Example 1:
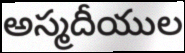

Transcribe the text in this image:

అస్మదీయుల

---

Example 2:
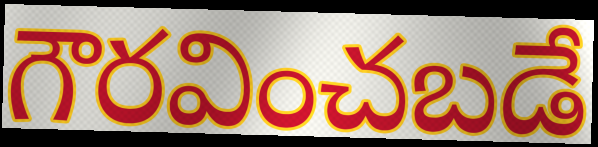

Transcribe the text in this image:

గౌరవించబడే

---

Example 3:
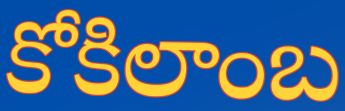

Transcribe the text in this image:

కోకిలాంబ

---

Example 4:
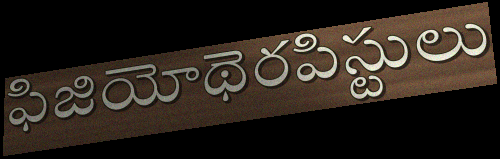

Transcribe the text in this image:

ఫిజియోథెరపిస్టులు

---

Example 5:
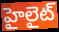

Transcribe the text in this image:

హైలైట్